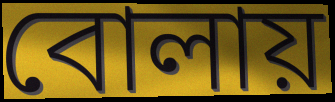
বোলায়